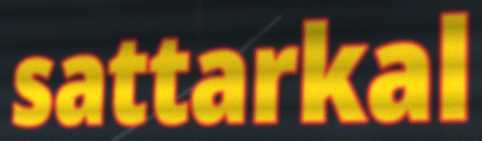
sattarkal